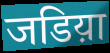
जडिय़ा